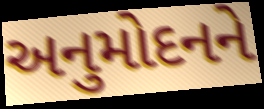
અનુમોદનને